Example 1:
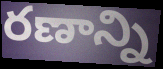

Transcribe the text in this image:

రణాన్ని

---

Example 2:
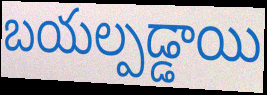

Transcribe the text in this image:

బయల్పడ్డాయి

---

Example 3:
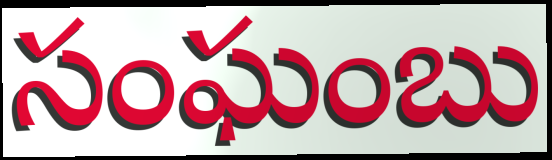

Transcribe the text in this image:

సంఘంబు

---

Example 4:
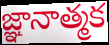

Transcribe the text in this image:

జ్ఞానాత్మక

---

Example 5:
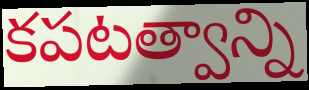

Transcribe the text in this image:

కపటత్వాన్ని